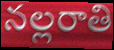
నల్లరాతి